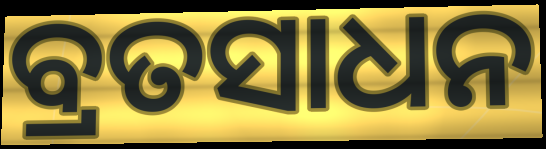
ବ୍ରତସାଧନ